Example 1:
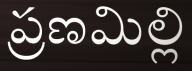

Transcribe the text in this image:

ప్రణమిల్లి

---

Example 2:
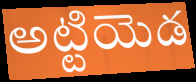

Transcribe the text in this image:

అట్టియెడ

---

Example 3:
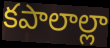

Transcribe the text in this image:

కపాలాల్లా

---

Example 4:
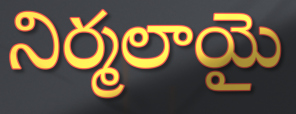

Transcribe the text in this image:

నిర్మలాయై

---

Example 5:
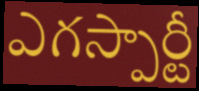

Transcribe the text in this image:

ఎగస్పార్టీ